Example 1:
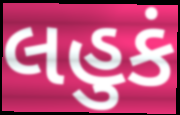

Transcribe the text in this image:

લહુકં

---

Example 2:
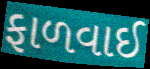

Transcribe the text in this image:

ફાળવાઈ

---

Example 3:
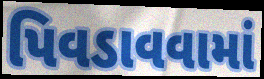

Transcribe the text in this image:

પિવડાવવામાં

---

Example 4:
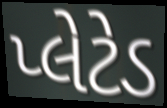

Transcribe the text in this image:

પ્લેટેડ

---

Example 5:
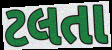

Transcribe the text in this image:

ટલતા